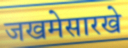
जखमेसारखे